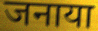
जनाया